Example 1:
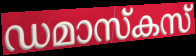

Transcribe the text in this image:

ഡമാസ്കസ്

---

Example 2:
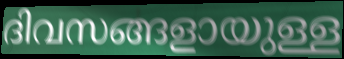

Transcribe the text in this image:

ദിവസങ്ങളായുള്ള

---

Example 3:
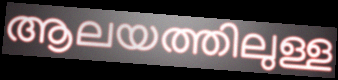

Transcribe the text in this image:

ആലയത്തിലുള്ള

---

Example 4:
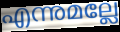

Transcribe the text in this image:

എന്നുമല്ലേ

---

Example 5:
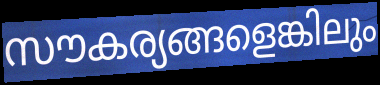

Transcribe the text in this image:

സൗകര്യങ്ങളെങ്കിലും